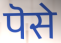
पॆसे